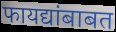
फायद्यांबाबत